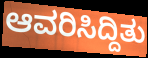
ಆವರಿಸಿದ್ದಿತು